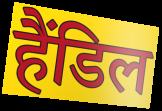
हैंडिल